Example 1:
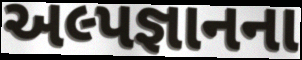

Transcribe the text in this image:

અલ્પજ્ઞાનના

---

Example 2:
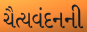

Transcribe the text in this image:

ચૈત્યવંદનની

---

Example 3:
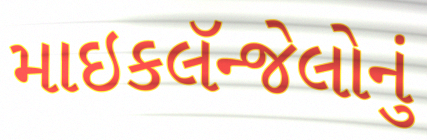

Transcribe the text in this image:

માઇકલૅન્જેલોનું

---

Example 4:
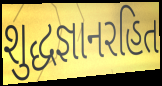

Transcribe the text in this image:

શુદ્ધજ્ઞાનરહિત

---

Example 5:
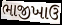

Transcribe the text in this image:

ભાજીખાઉ